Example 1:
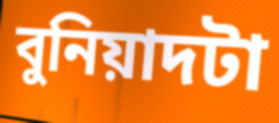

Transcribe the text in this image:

বুনিয়াদটা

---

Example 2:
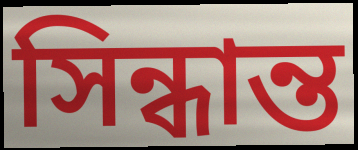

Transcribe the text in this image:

সিন্ধান্ত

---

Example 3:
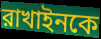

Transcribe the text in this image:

রাখাইনকে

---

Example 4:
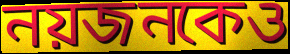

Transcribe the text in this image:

নয়জনকেও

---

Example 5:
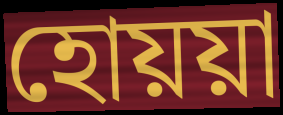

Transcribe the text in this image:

হোয়য়া